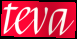
teva